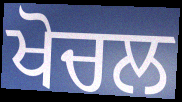
ਖੋਚਲ